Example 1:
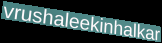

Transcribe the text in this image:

vrushaleekinhalkar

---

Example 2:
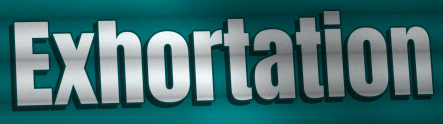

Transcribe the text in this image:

Exhortation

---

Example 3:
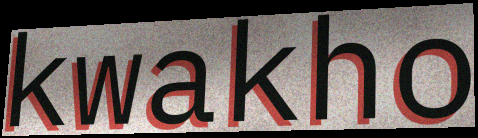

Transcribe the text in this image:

kwakho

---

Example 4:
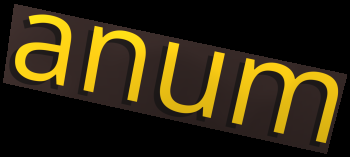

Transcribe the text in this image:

anum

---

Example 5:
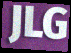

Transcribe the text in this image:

JLG